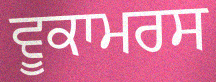
ਵੂਕਾਮਰਸ